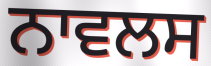
ਨਾਵਲਸ